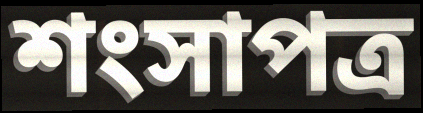
শংসাপত্র